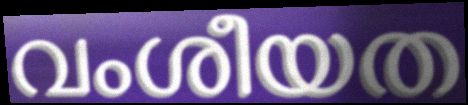
വംശീയത